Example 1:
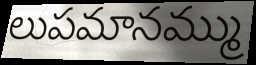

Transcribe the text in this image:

లుపమానమ్ము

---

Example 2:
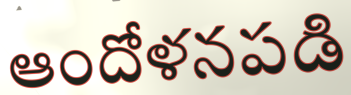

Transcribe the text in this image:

ఆందోళనపడి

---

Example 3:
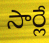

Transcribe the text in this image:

సార్లే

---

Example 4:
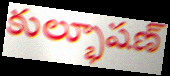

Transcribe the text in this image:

కుల్భూషణ్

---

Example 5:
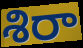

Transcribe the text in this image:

శిరా